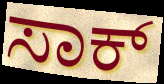
ಸಾಕ್